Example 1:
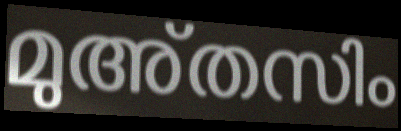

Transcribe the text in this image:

മുഅ്തസിം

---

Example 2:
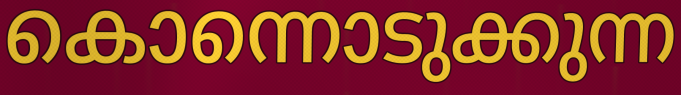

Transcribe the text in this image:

കൊന്നൊടുക്കുന്ന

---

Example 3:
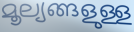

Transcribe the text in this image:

മൂല്യങ്ങളുള്ള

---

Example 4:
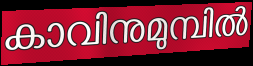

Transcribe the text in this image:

കാവിനുമുമ്പിൽ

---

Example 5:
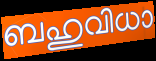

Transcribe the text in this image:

ബഹുവിധാ